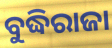
ବୁଦ୍ଧିରାଜା